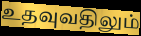
உதவுவதிலும்